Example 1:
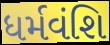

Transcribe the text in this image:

ધર્મવંશિ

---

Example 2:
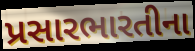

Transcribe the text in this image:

પ્રસારભારતીના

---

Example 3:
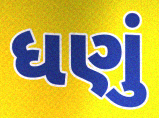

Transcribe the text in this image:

ધણું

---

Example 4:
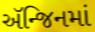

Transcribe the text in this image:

ઍન્જિનમાં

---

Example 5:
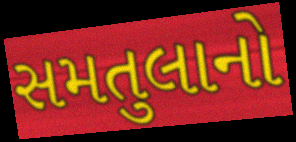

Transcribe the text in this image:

સમતુલાનો